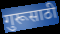
गुरूसाठी